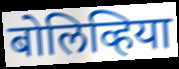
बोलिव्हिया